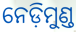
ନେଡ଼ିମୁଣ୍ଡ